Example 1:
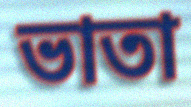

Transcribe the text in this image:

ভাতা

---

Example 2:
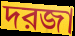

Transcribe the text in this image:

দরজা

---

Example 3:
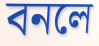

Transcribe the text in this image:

বনলে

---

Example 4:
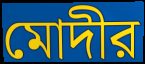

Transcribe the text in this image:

মোদীর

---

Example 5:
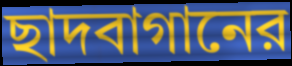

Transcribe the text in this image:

ছাদবাগানের